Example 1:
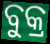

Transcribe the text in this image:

ବୁକ୍ର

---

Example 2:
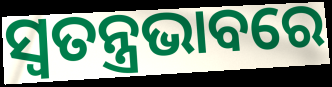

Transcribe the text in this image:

ସ୍ଵତନ୍ତ୍ରଭାବରେ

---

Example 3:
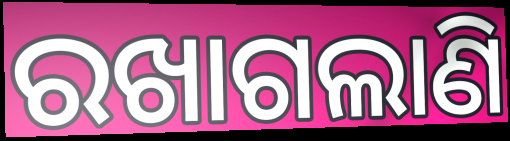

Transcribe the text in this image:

ରଖାଗଲାଣି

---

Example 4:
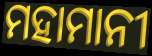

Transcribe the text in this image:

ମହାମାନୀ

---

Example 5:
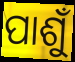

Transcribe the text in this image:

ପାଶୁଁ